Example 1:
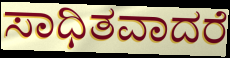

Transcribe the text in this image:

ಸಾಧಿತವಾದರೆ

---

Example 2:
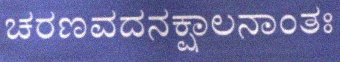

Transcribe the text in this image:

ಚರಣವದನಕ್ಷಾಲನಾಂತಃ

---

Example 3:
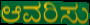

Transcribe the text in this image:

ಆವರಿಸು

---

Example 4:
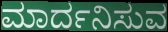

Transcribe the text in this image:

ಮಾರ್ದನಿಸುವ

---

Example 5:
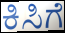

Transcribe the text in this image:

ಕಿಸಿಗೆ